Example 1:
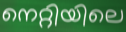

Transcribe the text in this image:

നെറ്റിയിലെ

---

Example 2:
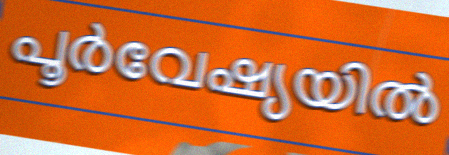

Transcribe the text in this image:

പൂർവേഷ്യയിൽ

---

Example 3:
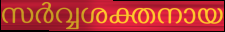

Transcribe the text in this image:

സർവ്വശക്തനായ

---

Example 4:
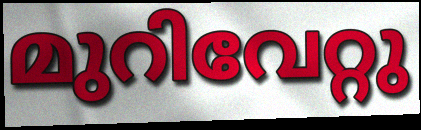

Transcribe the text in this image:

മുറിവേറ്റു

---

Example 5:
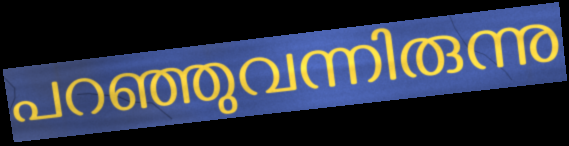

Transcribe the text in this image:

പറഞ്ഞുവന്നിരുന്നു